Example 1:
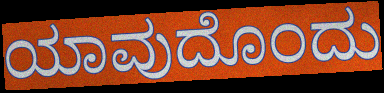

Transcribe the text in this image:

ಯಾವುದೊಂದು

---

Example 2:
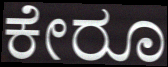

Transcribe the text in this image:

ಕೇರೂ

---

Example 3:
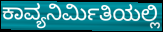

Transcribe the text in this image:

ಕಾವ್ಯನಿರ್ಮಿತಿಯಲ್ಲಿ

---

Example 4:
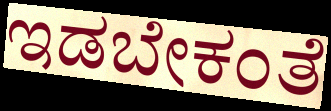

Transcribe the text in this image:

ಇಡಬೇಕಂತೆ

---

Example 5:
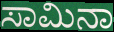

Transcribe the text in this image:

ಸಾಮಿನಾ